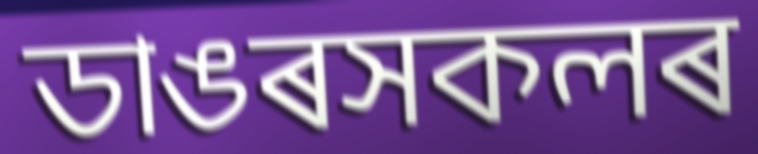
ডাঙৰসকলৰ